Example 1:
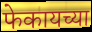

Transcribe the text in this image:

फेकायच्या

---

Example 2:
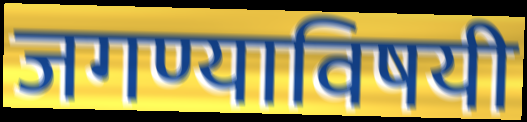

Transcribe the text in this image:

जगण्याविषयी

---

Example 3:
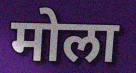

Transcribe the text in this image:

मोला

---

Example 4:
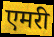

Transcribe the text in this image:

एमरी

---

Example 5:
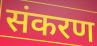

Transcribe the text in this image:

संकरण